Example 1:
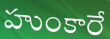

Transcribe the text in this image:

హుంకారే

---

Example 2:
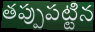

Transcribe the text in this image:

తప్పుపట్టిన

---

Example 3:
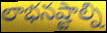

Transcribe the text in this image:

లాభనష్టాల్ని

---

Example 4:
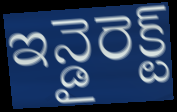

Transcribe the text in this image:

ఇన్డైరెక్ట్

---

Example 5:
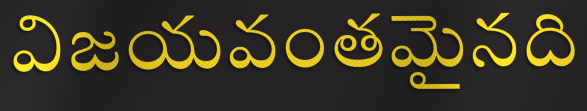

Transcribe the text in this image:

విజయవంతమైనది